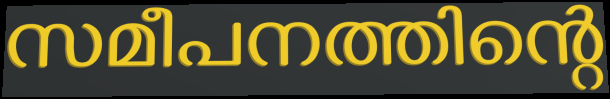
സമീപനത്തിന്റെ